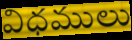
విధములు